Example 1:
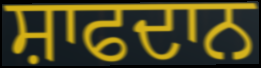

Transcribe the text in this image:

ਸ਼ਾਫਦਾਨ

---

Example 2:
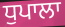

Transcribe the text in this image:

ਧੁਪਾਲਾ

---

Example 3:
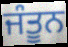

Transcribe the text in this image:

ਜੰਤੂਨ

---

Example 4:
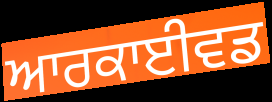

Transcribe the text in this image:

ਆਰਕਾਈਵਡ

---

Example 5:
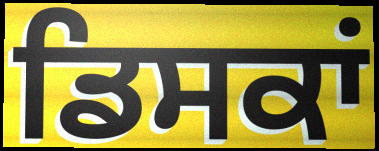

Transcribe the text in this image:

ਡਿਸਕਾਂ